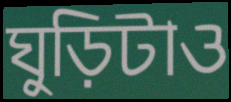
ঘুড়িটাও